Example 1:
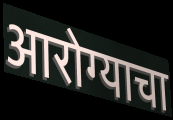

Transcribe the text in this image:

आरोग्याचा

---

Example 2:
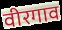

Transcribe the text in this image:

वीरगाव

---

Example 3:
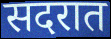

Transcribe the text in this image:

सदरात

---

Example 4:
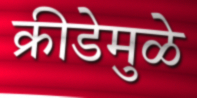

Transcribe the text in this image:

क्रीडेमुळे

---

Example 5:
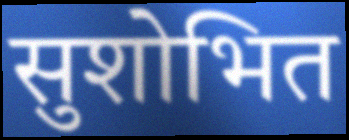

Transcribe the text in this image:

सुशोभित